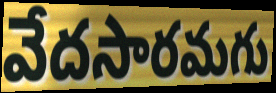
వేదసారమగు